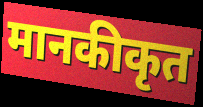
मानकीकृत